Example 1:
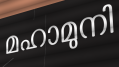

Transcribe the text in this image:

മഹാമുനി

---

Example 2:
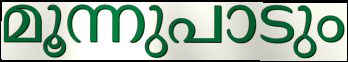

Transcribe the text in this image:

മൂന്നുപാടും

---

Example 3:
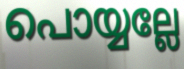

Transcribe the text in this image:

പൊയ്യല്ലേ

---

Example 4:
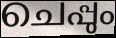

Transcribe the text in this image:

ചെപ്പും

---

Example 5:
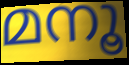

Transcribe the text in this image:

മനൂ